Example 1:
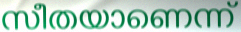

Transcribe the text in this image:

സീതയാണെന്ന്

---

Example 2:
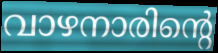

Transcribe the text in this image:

വാഴനാരിന്റെ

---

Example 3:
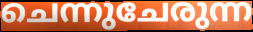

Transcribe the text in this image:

ചെന്നുചേരുന്ന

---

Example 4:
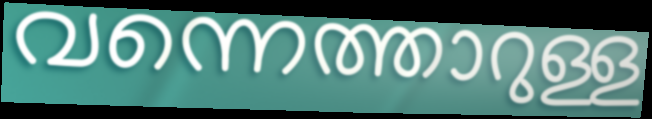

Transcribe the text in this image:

വന്നെത്താറുള്ള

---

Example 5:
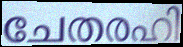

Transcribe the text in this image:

ചേതരഹി